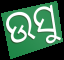
ଉସୁ